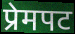
प्रेमपट